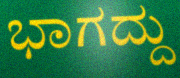
ಭಾಗದ್ದು